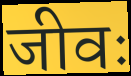
जीवः